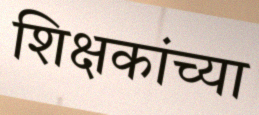
शिक्षकांच्या